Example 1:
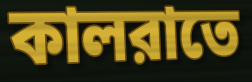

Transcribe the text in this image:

কালরাতে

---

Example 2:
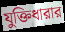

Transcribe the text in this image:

যুক্তিধারার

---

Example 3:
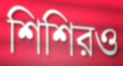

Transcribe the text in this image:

শিশিরও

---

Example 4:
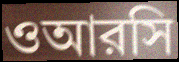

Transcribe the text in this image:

ওআরসি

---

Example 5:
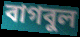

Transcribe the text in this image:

বাগবুল